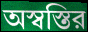
অস্বস্তির